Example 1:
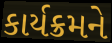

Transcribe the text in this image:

કાર્યક્રમને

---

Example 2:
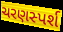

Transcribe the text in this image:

ચરણસ્પર્શ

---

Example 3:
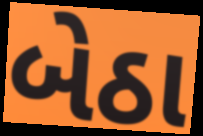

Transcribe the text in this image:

બેઠા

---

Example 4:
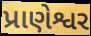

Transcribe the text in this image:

પ્રાણેશ્વર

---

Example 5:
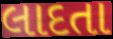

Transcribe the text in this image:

લાદતા